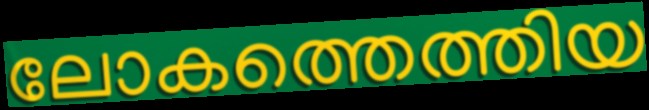
ലോകത്തെത്തിയ